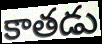
కాతడు